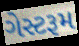
ગેસ્ટરૂમ